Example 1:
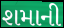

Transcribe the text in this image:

શમાની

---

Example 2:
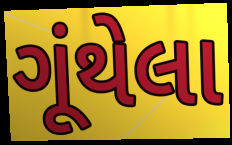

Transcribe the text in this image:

ગૂંથેલા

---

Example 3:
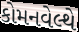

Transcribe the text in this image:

કોમનવેલ્થે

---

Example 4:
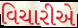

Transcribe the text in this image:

વિચારીએ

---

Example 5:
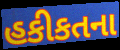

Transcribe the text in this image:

હકીકતના